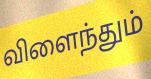
விளைந்தும்